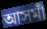
আসমাঁ